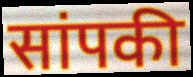
सांपकी